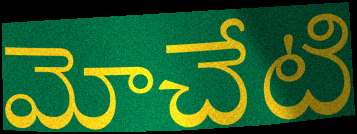
మోచేటి